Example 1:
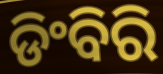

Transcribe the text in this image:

ଡିଂବିରି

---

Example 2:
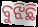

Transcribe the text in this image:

ବୁଝିଛି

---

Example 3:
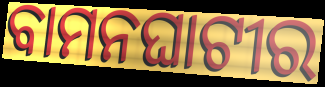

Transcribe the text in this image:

ବାମନଘାଟୀର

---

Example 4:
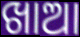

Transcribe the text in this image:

ଖାଆ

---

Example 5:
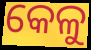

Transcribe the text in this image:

କେଳୁ